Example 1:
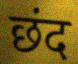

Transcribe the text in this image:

छंद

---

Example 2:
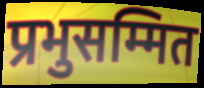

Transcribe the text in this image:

प्रभुसम्मित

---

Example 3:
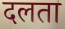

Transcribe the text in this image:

दलता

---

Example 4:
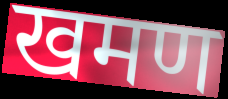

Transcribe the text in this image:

खमण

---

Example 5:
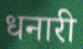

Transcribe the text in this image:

धनारी